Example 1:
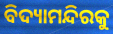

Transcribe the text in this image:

ବିଦ୍ୟାମନ୍ଦିରକୁ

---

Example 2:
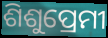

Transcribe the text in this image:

ଶିଶୁପ୍ରେମୀ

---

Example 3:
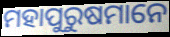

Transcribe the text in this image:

ମହାପୁରୁଷମାନେ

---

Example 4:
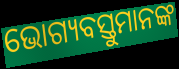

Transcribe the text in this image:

ଭୋଗ୍ୟବସ୍ତୁମାନଙ୍କ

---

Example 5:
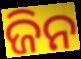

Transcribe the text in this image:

ଜିନ